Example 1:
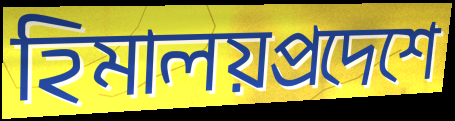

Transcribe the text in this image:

হিমালয়প্রদেশে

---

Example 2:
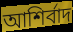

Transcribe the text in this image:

আশির্বাদ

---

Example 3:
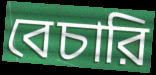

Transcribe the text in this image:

বেচারি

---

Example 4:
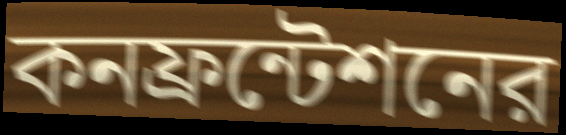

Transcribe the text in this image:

কনফ্রন্টেশনের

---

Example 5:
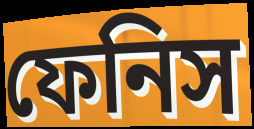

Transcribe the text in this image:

ফেনিস